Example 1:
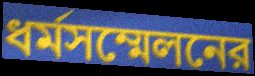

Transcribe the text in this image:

ধর্মসম্মেলনের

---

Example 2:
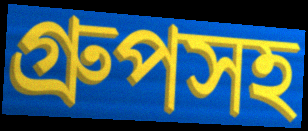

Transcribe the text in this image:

গ্রুপসহ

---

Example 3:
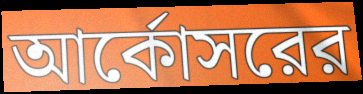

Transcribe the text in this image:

আর্কোসরের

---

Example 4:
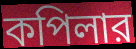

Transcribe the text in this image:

কপিলার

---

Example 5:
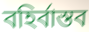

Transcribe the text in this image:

বহির্বাস্তব